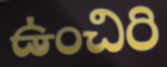
ఉంచిరి